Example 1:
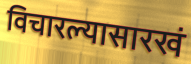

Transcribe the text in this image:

विचारल्यासारखं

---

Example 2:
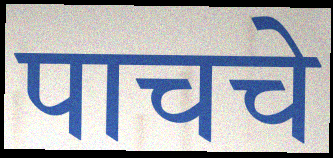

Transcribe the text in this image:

पाचचे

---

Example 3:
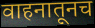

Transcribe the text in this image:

वाहनातूनच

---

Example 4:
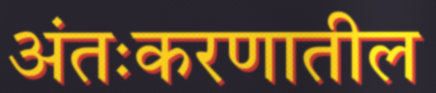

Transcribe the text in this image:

अंतःकरणातील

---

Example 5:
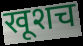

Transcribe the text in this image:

खूशच